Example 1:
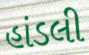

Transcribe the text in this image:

હાંડલી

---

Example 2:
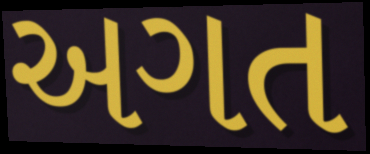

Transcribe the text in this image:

અગત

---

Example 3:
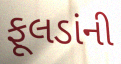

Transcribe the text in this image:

ફૂલડાંની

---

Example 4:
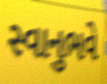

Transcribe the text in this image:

સ્વાનુભવે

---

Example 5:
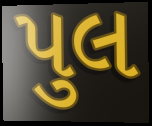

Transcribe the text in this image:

પુલ